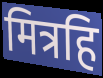
मित्रहि